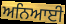
ਅਨਿਆਈ